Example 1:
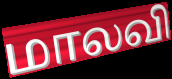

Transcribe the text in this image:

மாலவி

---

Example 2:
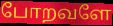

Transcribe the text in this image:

போறவளே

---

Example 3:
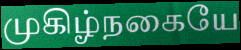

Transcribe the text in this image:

முகிழ்நகையே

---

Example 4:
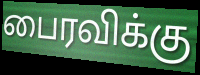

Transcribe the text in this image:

பைரவிக்கு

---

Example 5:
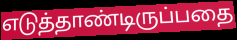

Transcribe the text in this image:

எடுத்தாண்டிருப்பதை